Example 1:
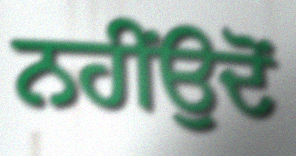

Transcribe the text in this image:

ਨਹੀਂਉਦੋਂ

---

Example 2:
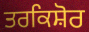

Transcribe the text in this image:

ਤਰਕਿਸ਼ੋਰ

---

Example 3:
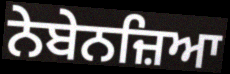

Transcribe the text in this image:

ਨੇਬੇਨਜ਼ਿਆ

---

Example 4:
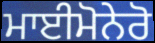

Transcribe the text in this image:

ਮਾਈਮੋਨੇਰੋ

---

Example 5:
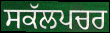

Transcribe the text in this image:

ਸਕੱਲਪਚਰ